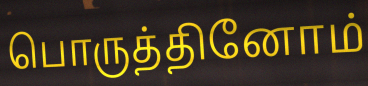
பொருத்தினோம்